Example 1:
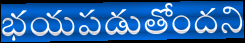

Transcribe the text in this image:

భయపడుతోందని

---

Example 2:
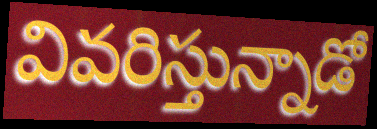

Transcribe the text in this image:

వివరిస్తున్నాడో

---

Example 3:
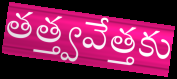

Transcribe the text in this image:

తత్త్వవేత్తకు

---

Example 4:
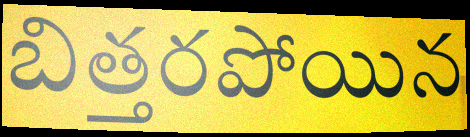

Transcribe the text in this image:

బిత్తరపోయిన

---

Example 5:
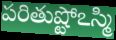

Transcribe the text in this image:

పరితుష్టోఽస్మి